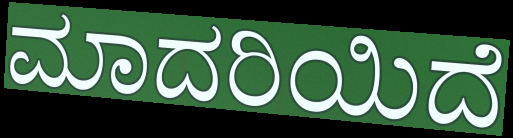
ಮಾದರಿಯಿದೆ